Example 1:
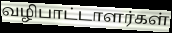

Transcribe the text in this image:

வழிபாட்டாளர்கள்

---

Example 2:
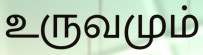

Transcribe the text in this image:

உருவமும்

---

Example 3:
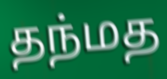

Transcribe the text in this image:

தந்மத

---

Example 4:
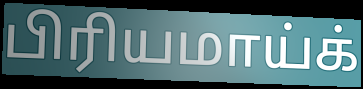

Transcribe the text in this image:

பிரியமாய்க்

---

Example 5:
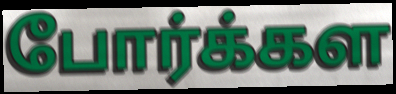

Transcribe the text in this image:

போர்க்கள